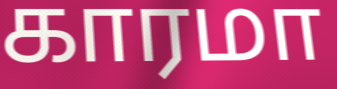
காரமா